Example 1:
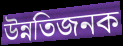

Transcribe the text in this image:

উন্নতিজনক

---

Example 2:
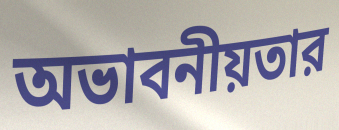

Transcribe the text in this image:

অভাবনীয়তার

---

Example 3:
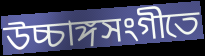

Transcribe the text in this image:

উচ্চাঙ্গসংগীতে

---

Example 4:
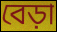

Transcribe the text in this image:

বেড়া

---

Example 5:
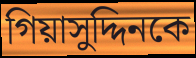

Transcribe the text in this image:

গিয়াসুদ্দিনকে